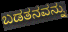
ಬಡತನವನ್ನು